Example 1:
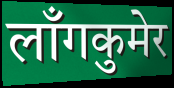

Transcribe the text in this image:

लाँगकुमेर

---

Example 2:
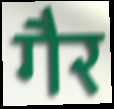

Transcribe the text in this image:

गैर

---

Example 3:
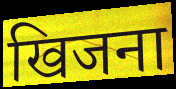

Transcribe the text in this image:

खिजना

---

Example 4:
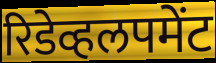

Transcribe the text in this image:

रिडेव्हलपमेंट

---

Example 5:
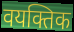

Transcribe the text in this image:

वयक्तिक